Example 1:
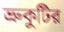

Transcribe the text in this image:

ভ্রুকুটির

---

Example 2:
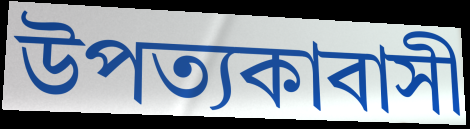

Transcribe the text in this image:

উপত্যকাবাসী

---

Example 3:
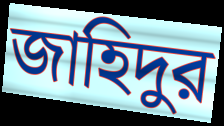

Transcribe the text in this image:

জাহিদুর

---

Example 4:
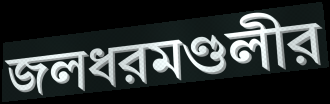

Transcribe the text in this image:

জলধরমণ্ডলীর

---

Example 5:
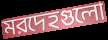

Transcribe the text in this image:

মরদেহগুলো